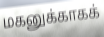
மகனுக்காகக்